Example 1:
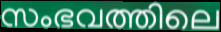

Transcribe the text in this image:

സംഭവത്തിലെ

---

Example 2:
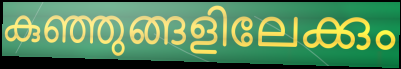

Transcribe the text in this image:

കുഞ്ഞുങ്ങളിലേക്കും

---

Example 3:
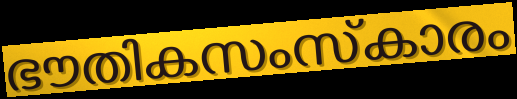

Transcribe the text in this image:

ഭൗതികസംസ്‌കാരം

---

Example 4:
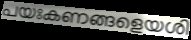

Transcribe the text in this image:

പയഃകണങ്ങളെയശി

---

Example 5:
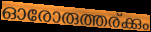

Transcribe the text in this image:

ഓരോരുത്തര്ക്കും